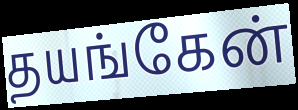
தயங்கேன்